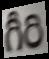
గీరి